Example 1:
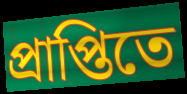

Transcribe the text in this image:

প্রাপ্তিতে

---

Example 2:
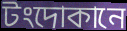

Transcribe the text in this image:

টংদোকানে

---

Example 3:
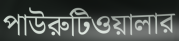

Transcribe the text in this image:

পাউরুটিওয়ালার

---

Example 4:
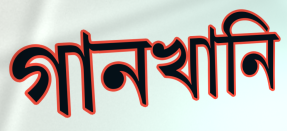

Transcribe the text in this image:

গানখানি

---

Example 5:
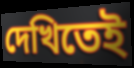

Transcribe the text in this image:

দেখিতেই